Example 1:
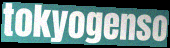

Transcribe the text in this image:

tokyogenso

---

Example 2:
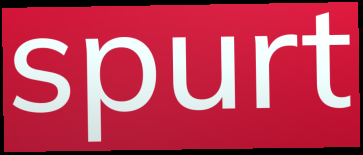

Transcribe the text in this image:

spurt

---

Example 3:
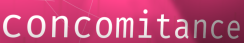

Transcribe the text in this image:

concomitance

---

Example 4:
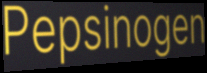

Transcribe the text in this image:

Pepsinogen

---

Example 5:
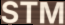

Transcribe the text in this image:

STM